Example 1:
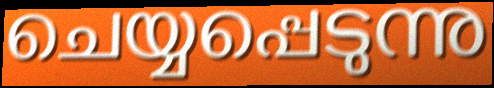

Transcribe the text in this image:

ചെയ്യപ്പെടുന്നു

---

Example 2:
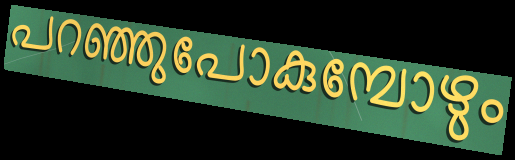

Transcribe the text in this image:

പറഞ്ഞുപോകുമ്പോഴും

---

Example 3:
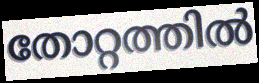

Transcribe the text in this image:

തോറ്റത്തിൽ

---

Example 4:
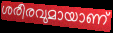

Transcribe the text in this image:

ശരീരവുമായാണ്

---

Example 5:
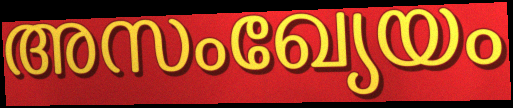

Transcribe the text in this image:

അസംഖ്യേയം